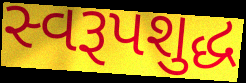
સ્વરૂપશુદ્ધ